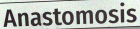
Anastomosis